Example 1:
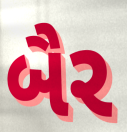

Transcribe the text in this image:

બૈર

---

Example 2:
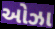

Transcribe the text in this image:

ઓઝા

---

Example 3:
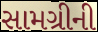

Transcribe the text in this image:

સામગ્રીની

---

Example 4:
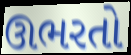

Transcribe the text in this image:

ઊભરતો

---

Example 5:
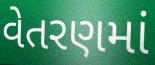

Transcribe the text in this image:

વેતરણમાં